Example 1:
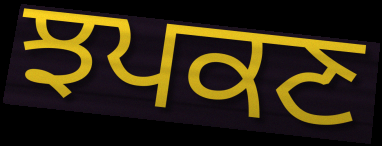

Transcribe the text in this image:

ਝਪਕਣ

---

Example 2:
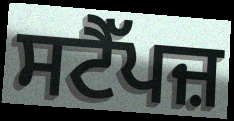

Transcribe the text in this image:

ਸਟੈੱਪਜ਼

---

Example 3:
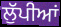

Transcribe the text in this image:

ਲੁੱਪੀਆਂ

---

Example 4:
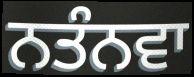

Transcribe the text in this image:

ਨਤੰਨਵਾ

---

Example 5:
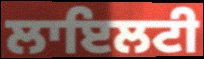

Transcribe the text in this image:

ਲਾਇਲਟੀ